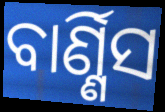
ବାର୍ଣ୍ଣିସ